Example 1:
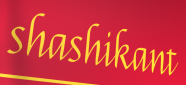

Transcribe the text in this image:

shashikant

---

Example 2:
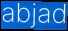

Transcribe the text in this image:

abjad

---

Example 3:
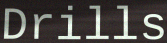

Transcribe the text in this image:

Drills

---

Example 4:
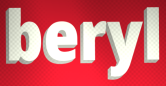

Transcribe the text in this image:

beryl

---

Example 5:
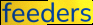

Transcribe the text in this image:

feeders